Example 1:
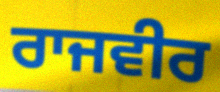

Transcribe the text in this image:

ਰਾਜਵੀਰ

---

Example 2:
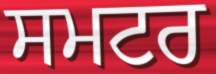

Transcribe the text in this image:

ਸਮਟਰ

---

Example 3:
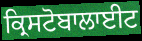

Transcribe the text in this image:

ਕ੍ਰਿਸਟੋਬਾਲਾਈਟ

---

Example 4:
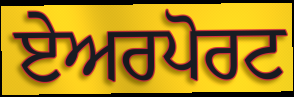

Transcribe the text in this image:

ਏਅਰਪੋਰਟ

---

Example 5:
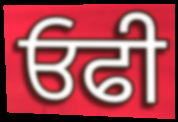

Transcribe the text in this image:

ਓਫੀ